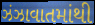
ઝંઝાવાતમાંથી